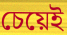
চেয়েই